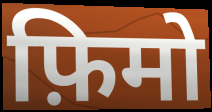
फ़िमो